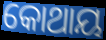
କୋଥାୟ